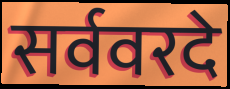
सर्ववरदे